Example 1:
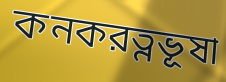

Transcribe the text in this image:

কনকরত্নভূষা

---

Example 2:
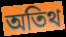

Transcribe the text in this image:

অতিথ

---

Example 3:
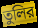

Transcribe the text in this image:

তুলির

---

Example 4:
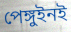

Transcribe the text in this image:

পেঙ্গুইনই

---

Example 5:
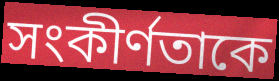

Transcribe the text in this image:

সংকীর্ণতাকে